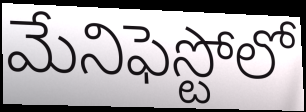
మేనిఫెస్టోలో